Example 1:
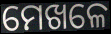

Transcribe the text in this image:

ମେଖଳେ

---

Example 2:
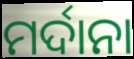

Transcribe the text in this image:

ମର୍ଦାନା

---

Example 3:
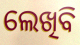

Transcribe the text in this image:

ଲେଖିବି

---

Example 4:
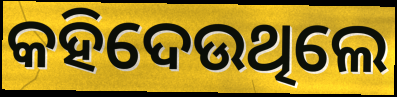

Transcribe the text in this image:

କହିଦେଉଥିଲେ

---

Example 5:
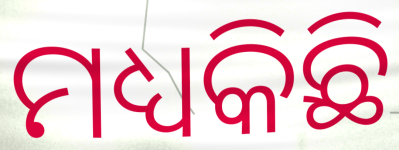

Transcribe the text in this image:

ମଧ୍ୟକିଛି